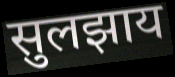
सुलझाय